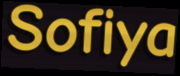
Sofiya